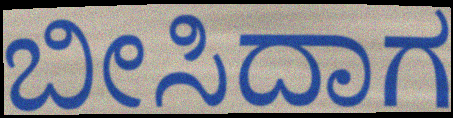
ಬೀಸಿದಾಗ